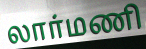
லார்மணி